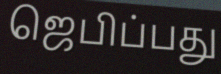
ஜெபிப்பது